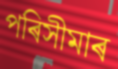
পৰিসীমাৰ